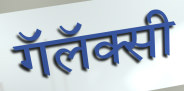
गॅलॅक्सी